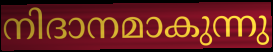
നിദാനമാകുന്നു